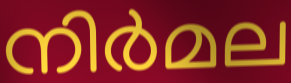
നിർമല